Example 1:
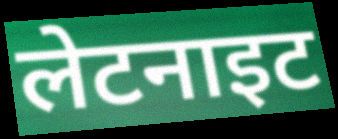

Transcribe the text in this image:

लेटनाइट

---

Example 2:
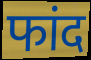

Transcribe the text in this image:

फांद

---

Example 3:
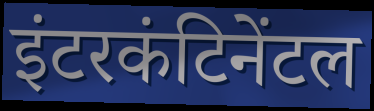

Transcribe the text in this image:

इंटरकंटिनेंटल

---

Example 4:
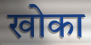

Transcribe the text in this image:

खोका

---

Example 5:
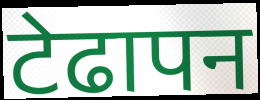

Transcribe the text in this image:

टेढापन